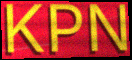
KPN